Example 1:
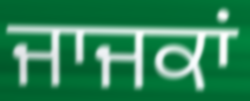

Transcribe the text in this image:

ਜਾਜਕਾਂ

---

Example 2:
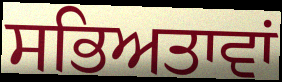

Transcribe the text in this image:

ਸਭਿਅਤਾਵਾਂ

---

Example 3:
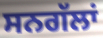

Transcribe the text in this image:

ਸਨਗੱਲਾਂ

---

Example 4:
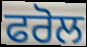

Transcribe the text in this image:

ਫਰੋਲ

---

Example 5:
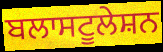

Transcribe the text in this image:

ਬਲਾਸਟੂਲੇਸ਼ਨ